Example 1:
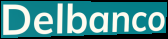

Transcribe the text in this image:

Delbanco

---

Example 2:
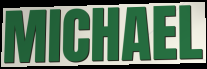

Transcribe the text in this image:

MICHAEL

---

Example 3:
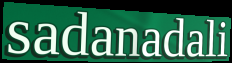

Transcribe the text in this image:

sadanadali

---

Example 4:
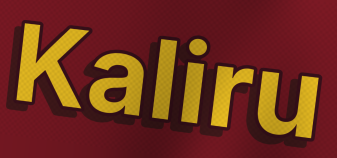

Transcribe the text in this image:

Kaliru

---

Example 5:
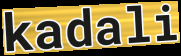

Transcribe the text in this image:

kadali